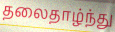
தலைதாழ்ந்து